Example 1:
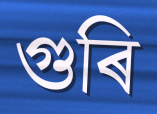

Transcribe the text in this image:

গুৰি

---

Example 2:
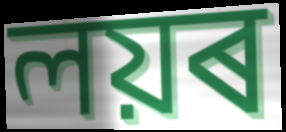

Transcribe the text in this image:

লয়ৰ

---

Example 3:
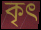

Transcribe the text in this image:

কৃৎ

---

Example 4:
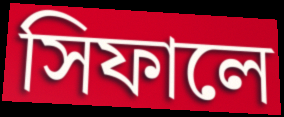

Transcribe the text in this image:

সিফালে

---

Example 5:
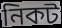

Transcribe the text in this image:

নিকট